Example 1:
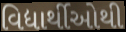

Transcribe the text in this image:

વિદ્યાર્થીઓથી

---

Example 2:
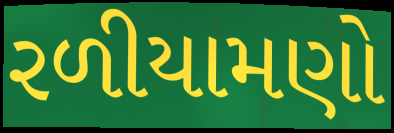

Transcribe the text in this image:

રળીયામણો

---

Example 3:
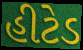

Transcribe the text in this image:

હીટેડ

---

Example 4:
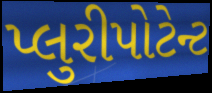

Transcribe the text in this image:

પ્લુરીપોટેન્ટ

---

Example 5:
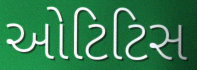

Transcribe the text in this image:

ઓટિટિસ